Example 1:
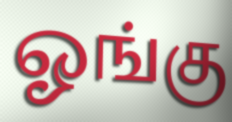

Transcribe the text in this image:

ஓங்கு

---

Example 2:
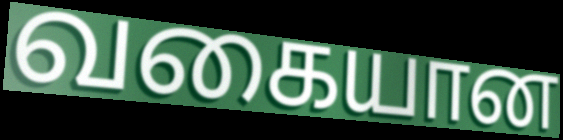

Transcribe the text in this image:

வகையான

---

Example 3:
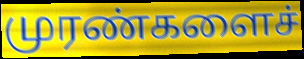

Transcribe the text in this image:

முரண்களைச்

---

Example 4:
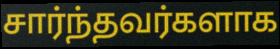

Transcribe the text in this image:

சார்ந்தவர்களாக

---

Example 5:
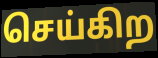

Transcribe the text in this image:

செய்கிற